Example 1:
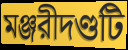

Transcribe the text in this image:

মঞ্জরীদণ্ডটি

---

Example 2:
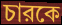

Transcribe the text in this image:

চারকে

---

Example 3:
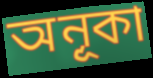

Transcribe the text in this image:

অনূকা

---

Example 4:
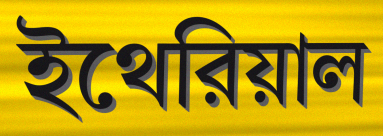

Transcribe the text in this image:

ইথেরিয়াল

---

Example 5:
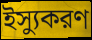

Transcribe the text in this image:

ইস্যুকরণ